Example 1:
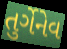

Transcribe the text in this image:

તુર્ગેનેવ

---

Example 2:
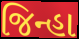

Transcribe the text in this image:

જિન્હા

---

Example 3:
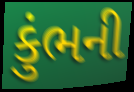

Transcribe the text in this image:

કુંભની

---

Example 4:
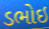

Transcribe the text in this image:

ડભોઇ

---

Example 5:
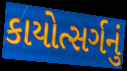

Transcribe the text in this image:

કાયોત્સર્ગનું